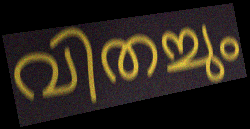
വിതച്ചും